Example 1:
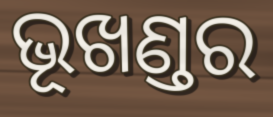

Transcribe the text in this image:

ଭୂଖଣ୍ଡର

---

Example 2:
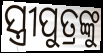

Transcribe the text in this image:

ସ୍ତ୍ରୀପୁତ୍ରଙ୍କୁ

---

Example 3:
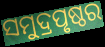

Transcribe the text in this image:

ସମୁଦ୍ରପୃଷ୍ଠର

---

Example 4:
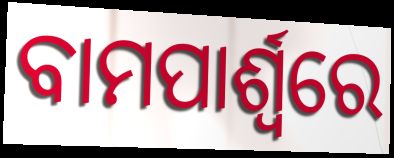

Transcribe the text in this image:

ବାମପାର୍ଶ୍ଵରେ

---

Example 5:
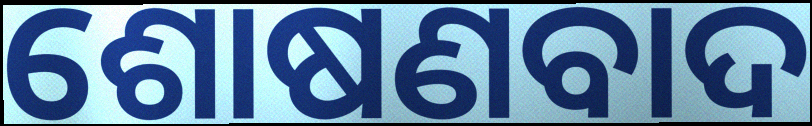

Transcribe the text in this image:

ଶୋଷଣବାଦ